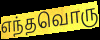
எந்தவொரு